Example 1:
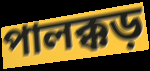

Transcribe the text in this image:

পালক্কড়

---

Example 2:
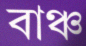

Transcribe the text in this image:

বাঞ্চ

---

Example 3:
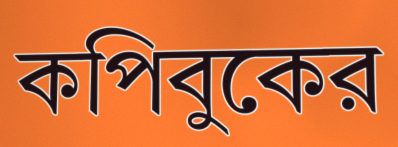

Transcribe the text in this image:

কপিবুকের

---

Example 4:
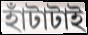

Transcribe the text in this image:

হাঁটাটাই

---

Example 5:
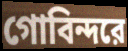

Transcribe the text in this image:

গোবিন্দরে